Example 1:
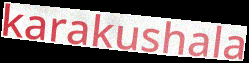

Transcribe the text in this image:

karakushala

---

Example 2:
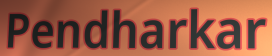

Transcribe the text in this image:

Pendharkar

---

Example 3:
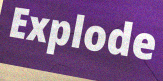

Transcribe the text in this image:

Explode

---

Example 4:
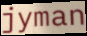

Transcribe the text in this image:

jyman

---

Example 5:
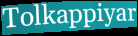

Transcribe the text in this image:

Tolkappiyar